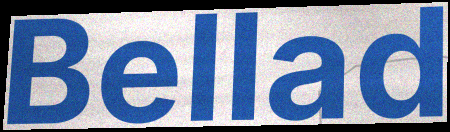
Bellad